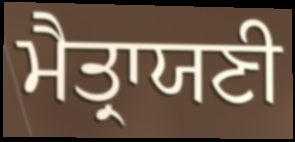
ਮੈਤ੍ਰਾਯਣੀ